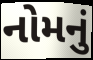
નોમનું